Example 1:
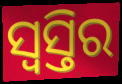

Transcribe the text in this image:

ସ୍ଵସ୍ତିର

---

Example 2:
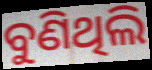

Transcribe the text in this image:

ବୁଣିଥିଲି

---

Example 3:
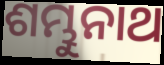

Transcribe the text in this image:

ଶମ୍ଭୁନାଥ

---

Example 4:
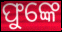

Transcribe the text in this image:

ଫୁଙ୍କେ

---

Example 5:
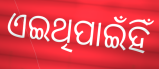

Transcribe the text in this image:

ଏଇଥିପାଇଁହିଁ